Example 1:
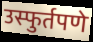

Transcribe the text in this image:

उस्फुर्तपणे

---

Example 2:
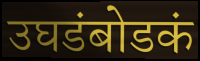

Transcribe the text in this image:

उघडंबोडकं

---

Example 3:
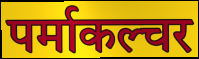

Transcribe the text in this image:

पर्माकल्चर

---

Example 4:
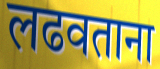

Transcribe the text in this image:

लढवताना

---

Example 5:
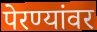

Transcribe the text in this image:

पेरण्यांवर